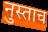
नुस्ताच